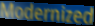
Modernized